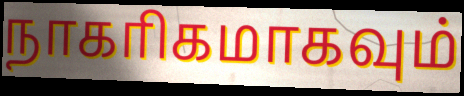
நாகரிகமாகவும்